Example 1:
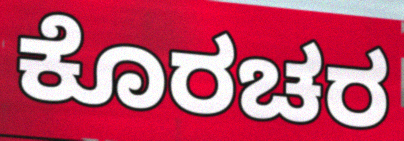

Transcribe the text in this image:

ಕೊರಚರ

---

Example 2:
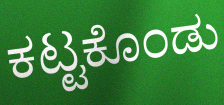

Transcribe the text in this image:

ಕಟ್ಟಕೊಂಡು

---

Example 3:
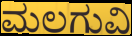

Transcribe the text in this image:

ಮಲಗುವಿ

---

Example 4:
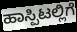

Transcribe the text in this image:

ಹಾಸ್ಪಿಟಲ್ಲಿಗೆ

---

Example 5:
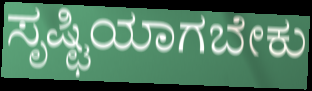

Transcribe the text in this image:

ಸೃಷ್ಟಿಯಾಗಬೇಕು